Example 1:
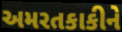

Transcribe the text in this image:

અમરતકાકીને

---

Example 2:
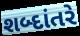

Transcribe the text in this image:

શબ્દાંતરે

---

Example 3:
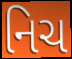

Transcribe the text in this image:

નિચ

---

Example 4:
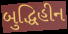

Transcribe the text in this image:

બુદ્ધિહીન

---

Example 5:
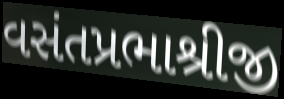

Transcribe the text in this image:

વસંતપ્રભાશ્રીજી